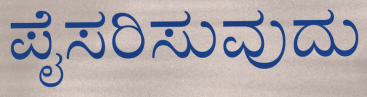
ಪೈಸರಿಸುವುದು